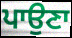
ਪਾਉਣਾ